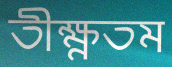
তীক্ষ্ণতম